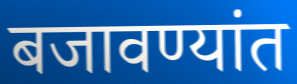
बजावण्यांत